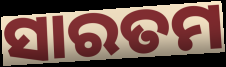
ସାରତମ